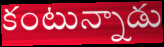
కంటున్నాడు